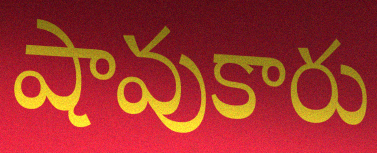
షావుకారు